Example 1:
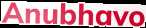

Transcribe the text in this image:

Anubhavo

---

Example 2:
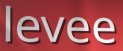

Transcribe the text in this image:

levee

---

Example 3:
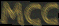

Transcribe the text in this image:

MCC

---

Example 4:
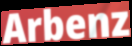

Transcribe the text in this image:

Arbenz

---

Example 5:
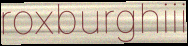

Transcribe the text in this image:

roxburghiii